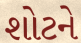
શોટને